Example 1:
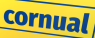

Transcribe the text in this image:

cornual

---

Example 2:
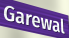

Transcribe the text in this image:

Garewal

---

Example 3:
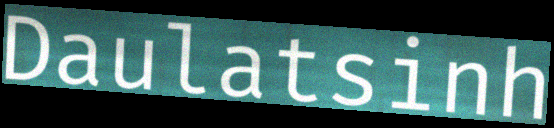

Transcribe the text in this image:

Daulatsinh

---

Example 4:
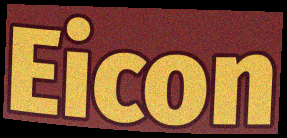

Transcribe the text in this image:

Eicon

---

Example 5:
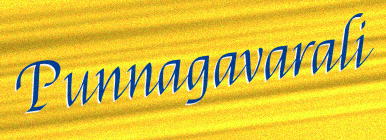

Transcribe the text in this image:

Punnagavarali